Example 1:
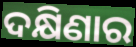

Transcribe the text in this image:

ଦକ୍ଷିଣାର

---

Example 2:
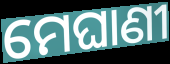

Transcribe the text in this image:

ମେଘାଣୀ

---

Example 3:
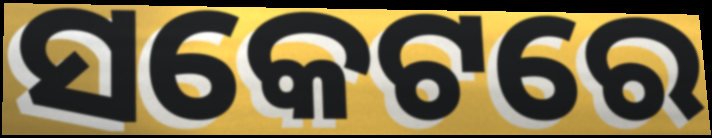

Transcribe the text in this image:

ସକେଟରେ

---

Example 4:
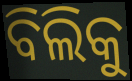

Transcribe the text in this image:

ବିଲିକୁ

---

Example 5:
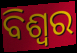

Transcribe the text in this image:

ବିଶ୍ଵର